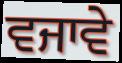
ਵਜਾਵੇ